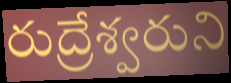
రుద్రేశ్వరుని